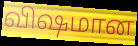
விஷமான